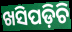
ଖସିପଡ଼ିଚି